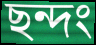
ছন্দং